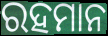
ରହମାନ